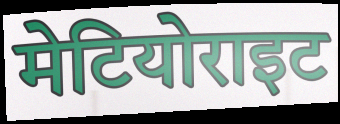
मेटियोराइट